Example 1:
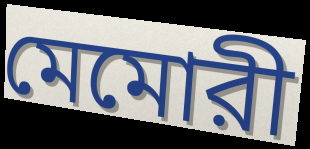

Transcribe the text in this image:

মেমোরী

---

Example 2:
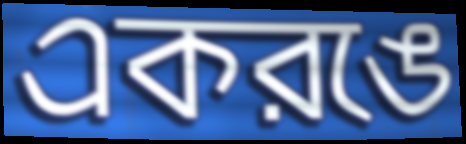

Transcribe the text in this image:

একরঙে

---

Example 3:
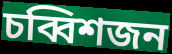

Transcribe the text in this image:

চব্বিশজন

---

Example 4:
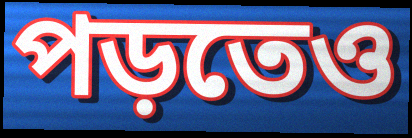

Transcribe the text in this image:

পড়তেও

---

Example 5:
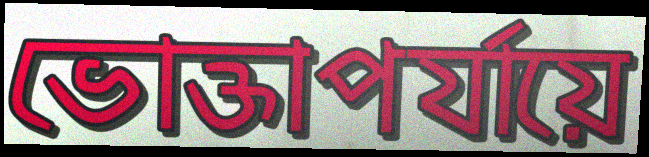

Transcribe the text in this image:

ভোক্তাপর্যায়ে